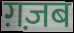
ग़ज़ब